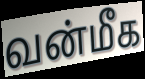
வன்மீக